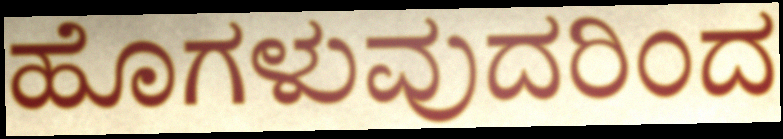
ಹೊಗಳುವುದರಿಂದ